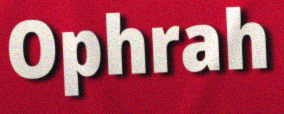
Ophrah